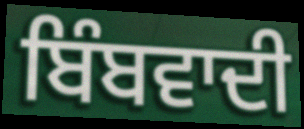
ਬਿੰਬਵਾਦੀ